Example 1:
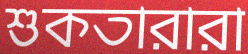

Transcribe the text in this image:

শুকতারারা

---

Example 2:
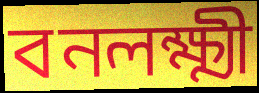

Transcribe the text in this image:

বনলক্ষ্মী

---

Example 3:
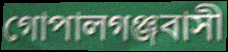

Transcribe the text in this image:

গোপালগঞ্জবাসী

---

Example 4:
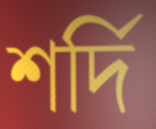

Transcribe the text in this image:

শর্দি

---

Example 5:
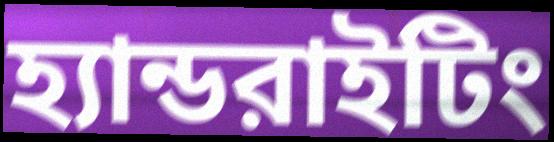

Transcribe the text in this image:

হ্যান্ডরাইটিং